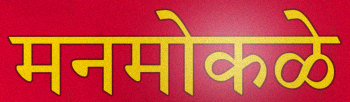
मनमोकळे